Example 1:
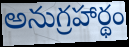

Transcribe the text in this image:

అనుగ్రహార్థం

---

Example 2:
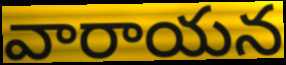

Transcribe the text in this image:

వారాయన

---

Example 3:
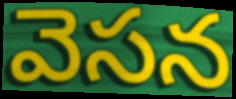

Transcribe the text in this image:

వెసన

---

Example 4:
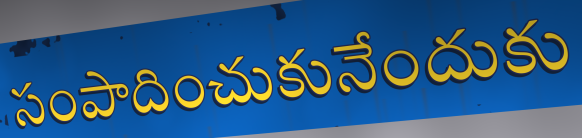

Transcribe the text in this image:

సంపాదించుకునేందుకు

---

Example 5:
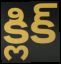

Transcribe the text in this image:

క్లిక్